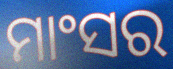
ମାଂସର